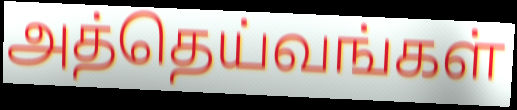
அத்தெய்வங்கள்